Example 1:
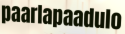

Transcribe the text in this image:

paarlapaadulo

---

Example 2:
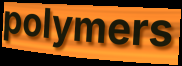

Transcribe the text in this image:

polymers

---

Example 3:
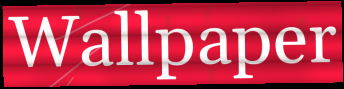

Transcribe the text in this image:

Wallpaper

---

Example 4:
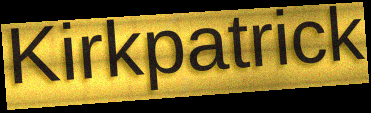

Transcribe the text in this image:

Kirkpatrick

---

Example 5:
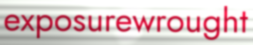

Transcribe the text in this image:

exposurewrought